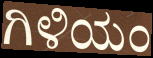
ಗಿಳಿಯಂ